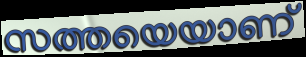
സത്തയെയാണ്